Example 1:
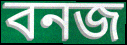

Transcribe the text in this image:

বনজ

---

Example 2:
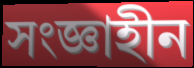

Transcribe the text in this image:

সংজ্ঞাহীন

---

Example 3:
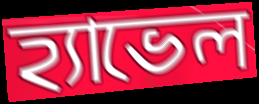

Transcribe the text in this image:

হ্যাভেল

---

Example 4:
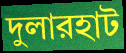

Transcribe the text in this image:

দুলারহাট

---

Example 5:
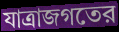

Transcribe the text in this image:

যাত্রাজগতের